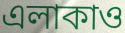
এলাকাও